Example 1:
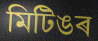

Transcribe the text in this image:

মিটিঙৰ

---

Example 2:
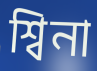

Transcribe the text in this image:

শ্বিনা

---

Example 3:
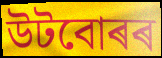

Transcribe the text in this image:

উটবোৰৰ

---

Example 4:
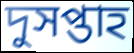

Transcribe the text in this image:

দুসপ্তাহ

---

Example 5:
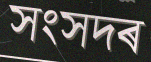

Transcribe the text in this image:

সংসদৰ